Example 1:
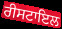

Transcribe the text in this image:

ਰੀਸਟਾਇਲ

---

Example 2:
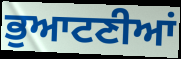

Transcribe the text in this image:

ਭੁਆਟਣੀਆਂ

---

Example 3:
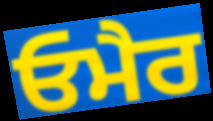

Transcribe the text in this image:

ਓਮੈਰ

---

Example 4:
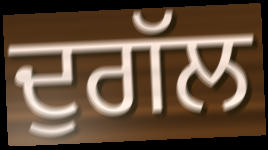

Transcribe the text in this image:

ਦੁਗੱਲ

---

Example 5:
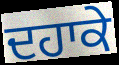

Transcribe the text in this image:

ਦਹਾਕੇ